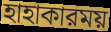
হাহাকারময়